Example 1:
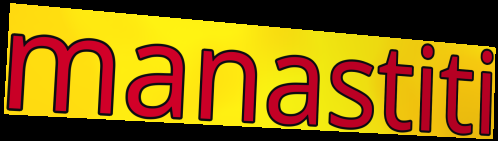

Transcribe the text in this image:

manastiti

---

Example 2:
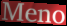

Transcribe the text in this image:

Meno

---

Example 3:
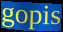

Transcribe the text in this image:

gopis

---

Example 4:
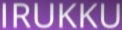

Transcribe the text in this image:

IRUKKU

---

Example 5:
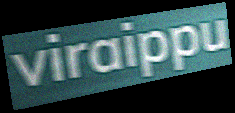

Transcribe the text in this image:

viraippu